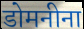
डोमनीना